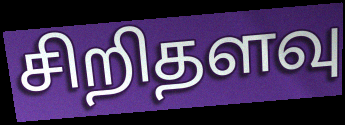
சிறிதளவு